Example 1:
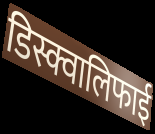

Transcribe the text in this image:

डिस्क्वालिफाई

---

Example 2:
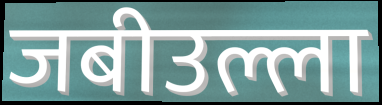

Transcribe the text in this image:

जबीउल्ला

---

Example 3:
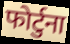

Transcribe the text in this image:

फोर्टुना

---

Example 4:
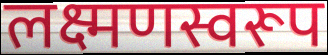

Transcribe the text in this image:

लक्ष्मणस्वरूप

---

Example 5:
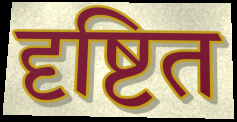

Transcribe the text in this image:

दृष्टित